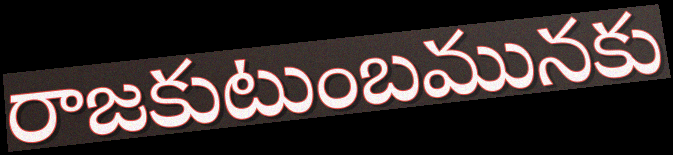
రాజకుటుంబమునకు